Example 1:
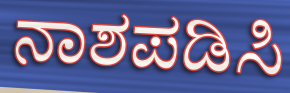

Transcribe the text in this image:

ನಾಶಪಡಿಸಿ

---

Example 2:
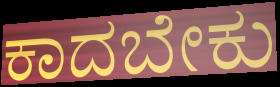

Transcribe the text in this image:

ಕಾದಬೇಕು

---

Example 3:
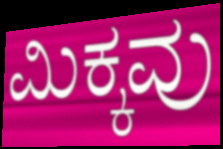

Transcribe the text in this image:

ಮಿಕ್ಕವು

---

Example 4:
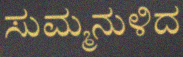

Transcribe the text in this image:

ಸುಮ್ಮನುಳಿದ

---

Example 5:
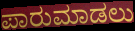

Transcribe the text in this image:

ಪಾರುಮಾಡಲು